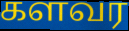
களவர